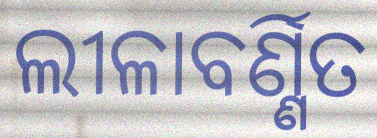
ଲୀଳାବର୍ଣ୍ଣିତ